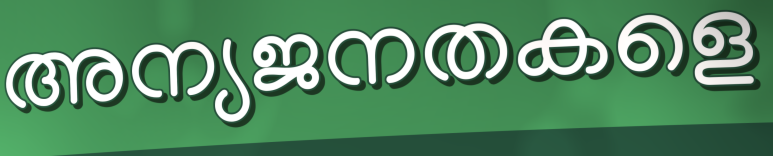
അന്യജനതകളെ